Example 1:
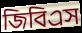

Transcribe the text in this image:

জিবিএস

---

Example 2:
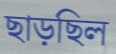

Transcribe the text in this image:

ছাড়ছিল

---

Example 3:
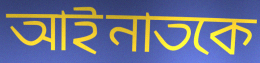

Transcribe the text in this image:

আইনাতকে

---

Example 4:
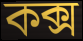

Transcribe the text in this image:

কক্স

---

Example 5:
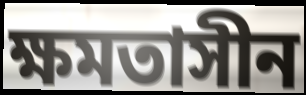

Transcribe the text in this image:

ক্ষমতাসীন